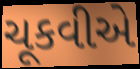
ચૂકવીએ